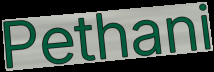
Pethani